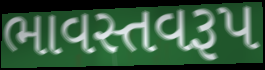
ભાવસ્તવરૂપ